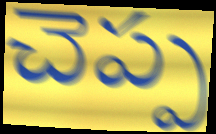
చెప్ప